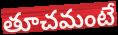
తూచమంటే